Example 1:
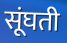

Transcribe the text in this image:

सूंघती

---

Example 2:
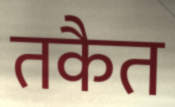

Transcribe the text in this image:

तकैत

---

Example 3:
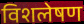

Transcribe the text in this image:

विशलेषण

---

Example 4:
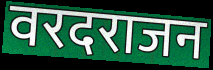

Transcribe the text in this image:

वरदराजन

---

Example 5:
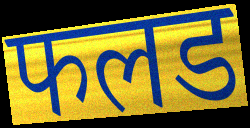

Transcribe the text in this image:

फलड